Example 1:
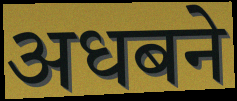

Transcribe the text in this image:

अधबने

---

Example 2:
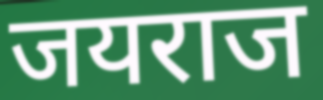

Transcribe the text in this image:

जयराज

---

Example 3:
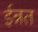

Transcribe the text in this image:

ईन्नत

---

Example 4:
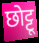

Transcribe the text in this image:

छोट्टू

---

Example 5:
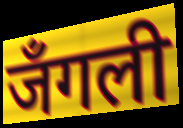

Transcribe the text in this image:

जँगली